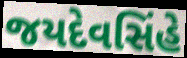
જયદેવસિંહે